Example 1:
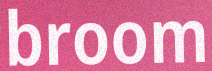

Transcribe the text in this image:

broom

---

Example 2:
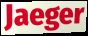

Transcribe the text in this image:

Jaeger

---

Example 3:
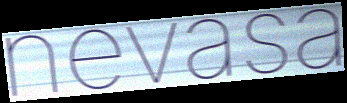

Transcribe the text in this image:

nevasa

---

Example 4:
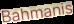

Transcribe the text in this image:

Bahmanis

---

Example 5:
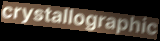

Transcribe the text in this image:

crystallographic